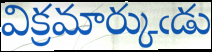
విక్రమార్కుఁడు